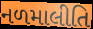
નળમાલીતિ